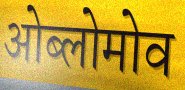
ओब्लोमोव